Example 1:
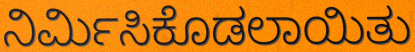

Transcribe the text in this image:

ನಿರ್ಮಿಸಿಕೊಡಲಾಯಿತು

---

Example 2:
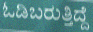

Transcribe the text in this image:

ಓಡಿಬರುತ್ತಿದ್ದೆ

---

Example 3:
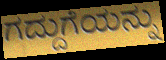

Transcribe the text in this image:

ಗದ್ದುಗೆಯನ್ನು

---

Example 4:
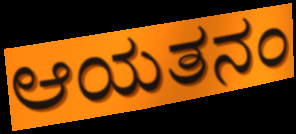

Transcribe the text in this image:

ಆಯತನಂ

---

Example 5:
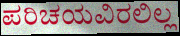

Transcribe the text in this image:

ಪರಿಚಯವಿರಲಿಲ್ಲ